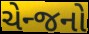
ચેન્જનો